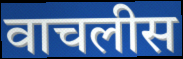
वाचलीस